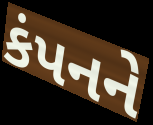
કંપનને